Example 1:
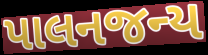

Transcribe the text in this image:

પાલનજન્ય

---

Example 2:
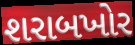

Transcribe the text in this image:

શરાબખોર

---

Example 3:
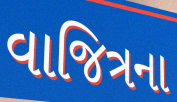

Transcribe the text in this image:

વાજિત્રના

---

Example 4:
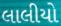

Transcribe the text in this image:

લાલીયો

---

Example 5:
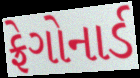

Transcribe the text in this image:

ફ્રેગોનાર્ડ